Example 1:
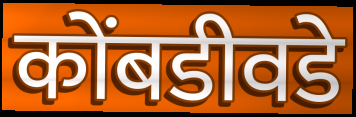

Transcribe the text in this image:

कोंबडीवडे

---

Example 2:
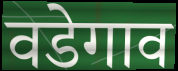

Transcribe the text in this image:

वडेगाव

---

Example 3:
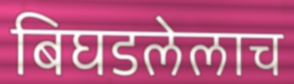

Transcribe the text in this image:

बिघडलेलाच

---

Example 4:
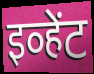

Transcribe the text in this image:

इव्हेंट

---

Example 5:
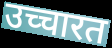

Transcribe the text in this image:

उच्चारत